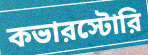
কভারস্টোরি